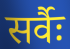
सर्वैः